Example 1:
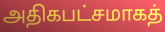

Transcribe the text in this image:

அதிகபட்சமாகத்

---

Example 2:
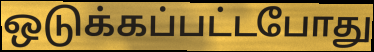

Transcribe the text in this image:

ஒடுக்கப்பட்டபோது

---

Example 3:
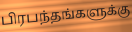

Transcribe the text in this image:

பிரபந்தங்களுக்கு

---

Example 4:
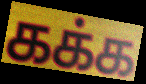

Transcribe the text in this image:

கக்க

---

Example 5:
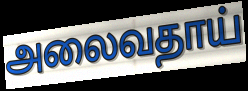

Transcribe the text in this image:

அலைவதாய்